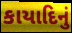
કાયાદિનું